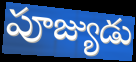
పూజ్యుడు